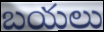
బయలు